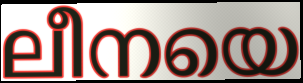
ലീനയെ